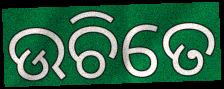
ଉଚିତେ